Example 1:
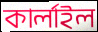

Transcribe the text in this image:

কার্লাইল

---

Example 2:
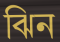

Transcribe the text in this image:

ঝিন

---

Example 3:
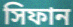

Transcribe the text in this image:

সিফান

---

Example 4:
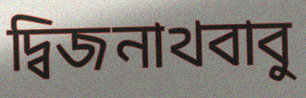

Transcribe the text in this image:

দ্বিজনাথবাবু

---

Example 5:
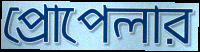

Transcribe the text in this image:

প্রোপেলার